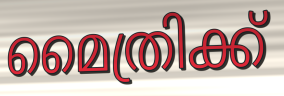
മൈത്രിക്ക്